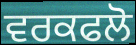
ਵਰਕਫਲੋ